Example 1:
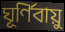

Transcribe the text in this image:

ঘূর্ণিবায়ু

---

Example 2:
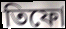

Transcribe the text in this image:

তিফো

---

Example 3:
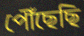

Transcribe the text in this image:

পৌঁছেছি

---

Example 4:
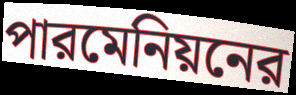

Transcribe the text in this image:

পারমেনিয়নের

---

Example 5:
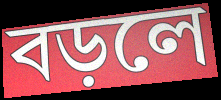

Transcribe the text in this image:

বড়লে